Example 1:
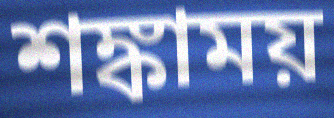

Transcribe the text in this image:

শঙ্কাময়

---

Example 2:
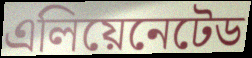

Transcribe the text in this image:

এলিয়েনেটেড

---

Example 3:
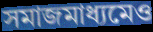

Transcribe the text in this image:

সমাজমাধ্যমেও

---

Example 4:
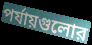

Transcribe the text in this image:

পর্যায়গুলোর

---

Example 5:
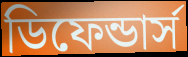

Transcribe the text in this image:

ডিফেন্ডার্স